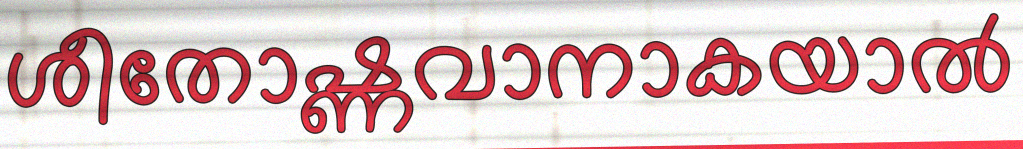
ശീതോഷ്ണവാനാകയാൽ